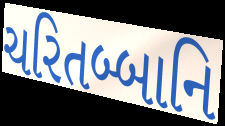
ચરિતબ્બાનિ